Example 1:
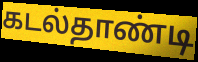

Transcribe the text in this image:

கடல்தாண்டி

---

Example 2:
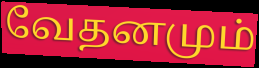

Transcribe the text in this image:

வேதனமும்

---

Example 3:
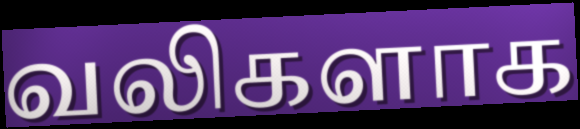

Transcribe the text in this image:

வலிகளாக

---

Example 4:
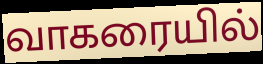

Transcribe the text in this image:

வாகரையில்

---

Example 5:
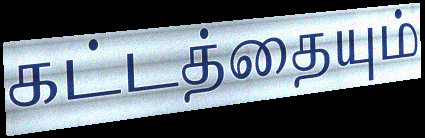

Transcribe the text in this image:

கட்டத்தையும்